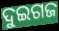
ଦୁଇଗଜ